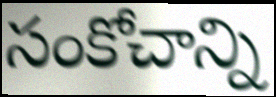
సంకోచాన్ని